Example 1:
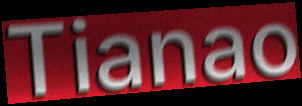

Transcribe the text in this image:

Tianao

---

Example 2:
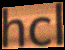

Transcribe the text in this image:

hcl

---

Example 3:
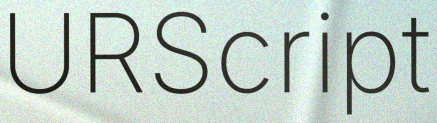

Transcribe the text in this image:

URScript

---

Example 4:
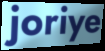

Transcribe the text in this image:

joriye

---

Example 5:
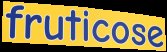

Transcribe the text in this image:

fruticose